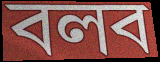
বলব